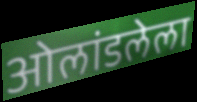
ओलांडलेला